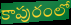
కాపురంలో